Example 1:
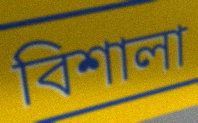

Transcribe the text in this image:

বিশালা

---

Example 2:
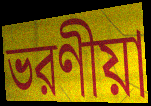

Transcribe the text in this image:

ভরণীয়া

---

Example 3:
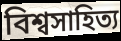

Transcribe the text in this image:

বিশ্বসাহিত্য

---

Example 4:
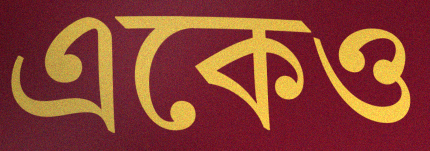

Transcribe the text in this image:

একেও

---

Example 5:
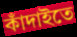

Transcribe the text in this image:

কাঁদাইতে